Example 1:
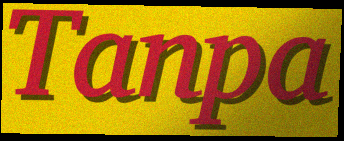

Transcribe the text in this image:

Tanpa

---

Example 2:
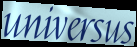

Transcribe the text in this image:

universus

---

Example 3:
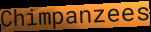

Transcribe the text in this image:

Chimpanzees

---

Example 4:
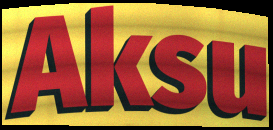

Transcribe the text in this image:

Aksu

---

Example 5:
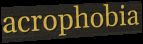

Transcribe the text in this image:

acrophobia